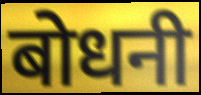
बोधनी